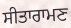
ਸੀਤਾਰਾਮਣ